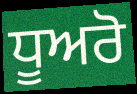
ਧੂਅਰੋ